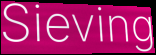
Sieving